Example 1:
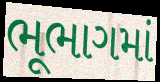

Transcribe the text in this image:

ભૂભાગમાં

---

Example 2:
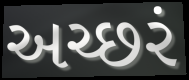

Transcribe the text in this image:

અચ્છરં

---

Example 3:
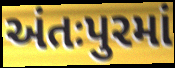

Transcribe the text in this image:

અંતઃપુરમાં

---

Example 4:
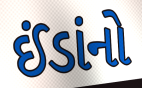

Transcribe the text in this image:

ઈંડાંનો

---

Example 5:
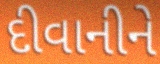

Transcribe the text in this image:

દીવાનીને